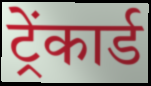
ट्रेंकार्ड